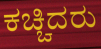
ಕಚ್ಚಿದರು